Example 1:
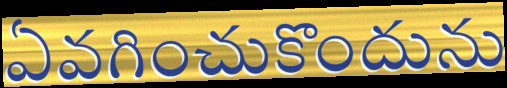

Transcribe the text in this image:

ఏవగించుకొందును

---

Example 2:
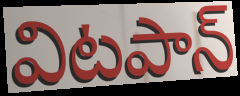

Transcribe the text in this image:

విటపాన్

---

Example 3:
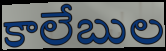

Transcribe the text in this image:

కాలేబుల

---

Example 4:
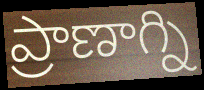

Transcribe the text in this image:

ప్రాణాగ్ని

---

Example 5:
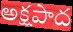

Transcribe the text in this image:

అక్షపాద